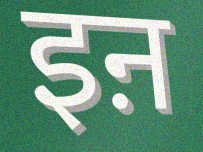
इऩ